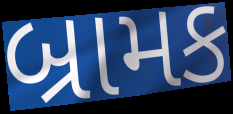
બ્રામક